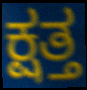
ಕ್ಷತ್ತ